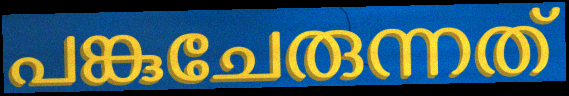
പങ്കുചേരുന്നത്